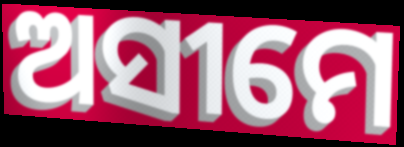
ଅସୀମେ